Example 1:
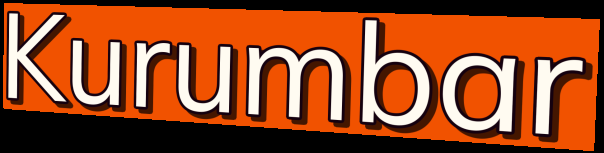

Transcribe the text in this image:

Kurumbar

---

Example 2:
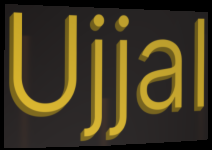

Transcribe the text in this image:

Ujjal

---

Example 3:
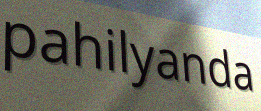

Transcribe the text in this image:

pahilyanda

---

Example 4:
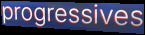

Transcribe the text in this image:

progressives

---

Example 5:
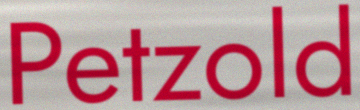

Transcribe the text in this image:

Petzold